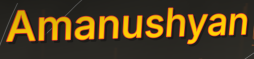
Amanushyan